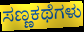
ಸಣ್ಣಕಥೆಗಳು